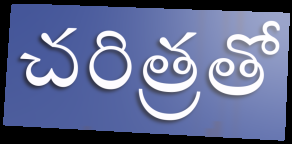
చరిత్రతో